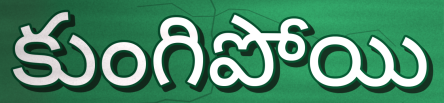
కుంగిపోయి